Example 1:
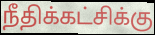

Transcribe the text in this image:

நீதிக்கட்சிக்கு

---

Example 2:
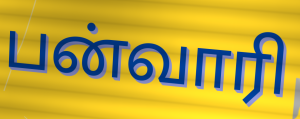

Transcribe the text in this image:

பன்வாரி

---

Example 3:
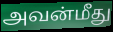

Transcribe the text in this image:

அவன்மீது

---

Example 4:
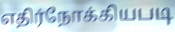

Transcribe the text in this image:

எதிர்நோக்கியபடி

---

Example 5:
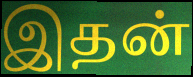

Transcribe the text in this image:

இதன்